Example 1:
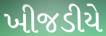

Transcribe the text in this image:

ખીજડીયે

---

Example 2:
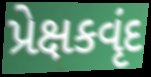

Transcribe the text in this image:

પ્રેક્ષકવૃંદ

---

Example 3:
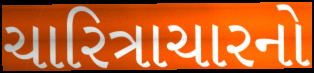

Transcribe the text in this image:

ચારિત્રાચારનો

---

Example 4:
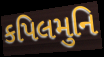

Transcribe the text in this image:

કપિલમુનિ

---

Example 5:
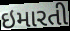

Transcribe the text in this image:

ઇમારતી